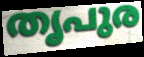
തൃപുര